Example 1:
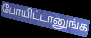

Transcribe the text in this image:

போயிட்டானுங்க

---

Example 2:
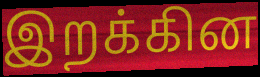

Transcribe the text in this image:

இறக்கின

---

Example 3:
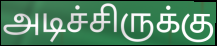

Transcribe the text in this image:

அடிச்சிருக்கு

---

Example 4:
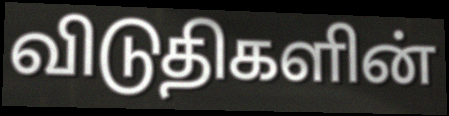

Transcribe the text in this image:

விடுதிகளின்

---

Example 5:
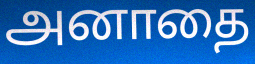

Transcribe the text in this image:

அனாதை